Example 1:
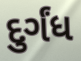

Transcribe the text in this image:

દુર્ગંધ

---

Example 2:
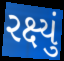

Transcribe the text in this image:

રક્ષ્યું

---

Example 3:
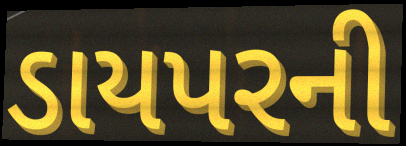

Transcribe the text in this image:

ડાયપરની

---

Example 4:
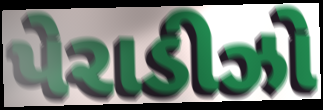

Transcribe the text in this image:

પેરાડીઝો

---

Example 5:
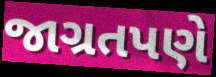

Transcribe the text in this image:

જાગ્રતપણે